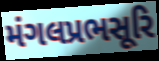
મંગલપ્રભસૂરિ